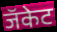
जॅकेट